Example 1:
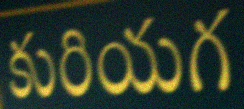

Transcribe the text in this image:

కురియగ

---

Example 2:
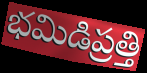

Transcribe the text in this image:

భమిడిప్రత్తి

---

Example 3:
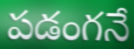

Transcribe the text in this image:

పడంగనే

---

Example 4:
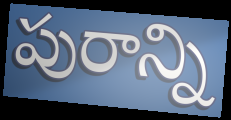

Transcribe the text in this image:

పురాన్ని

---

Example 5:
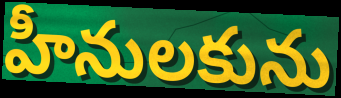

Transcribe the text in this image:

హీనులకును